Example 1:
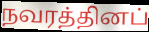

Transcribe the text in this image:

நவரத்தினப்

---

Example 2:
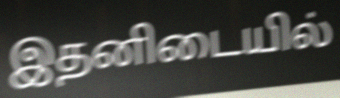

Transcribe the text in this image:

இதனிடையில்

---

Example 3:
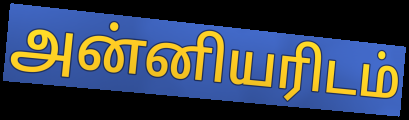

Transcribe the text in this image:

அன்னியரிடம்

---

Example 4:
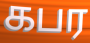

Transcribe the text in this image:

கபர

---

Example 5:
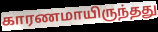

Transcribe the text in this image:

காரணமாயிருந்தது